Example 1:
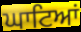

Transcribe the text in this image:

ਘਾਟਿਆਂ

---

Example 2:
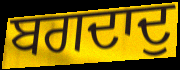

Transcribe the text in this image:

ਬਗਦਾਦੁ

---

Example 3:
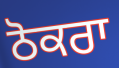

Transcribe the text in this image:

ਠੋਕਰਾ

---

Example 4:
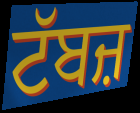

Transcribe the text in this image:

ਟੱਬਜ਼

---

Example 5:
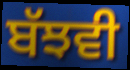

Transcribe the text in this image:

ਬੱਝਵੀ